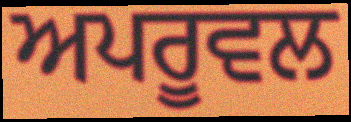
ਅਪਰੂਵਲ